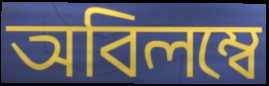
অবিলম্বে